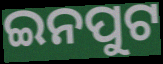
ଇନପୁଟ